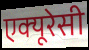
एक्यूरेसी